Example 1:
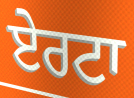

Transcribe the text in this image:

ਏਰਟਾ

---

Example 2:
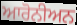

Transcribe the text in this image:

ਆਰੋਨੀਅਨ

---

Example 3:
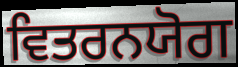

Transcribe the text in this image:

ਵਿਤਰਨਯੋਗ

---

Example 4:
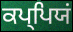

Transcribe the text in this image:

ਕਪ੍ਪਿਯਂ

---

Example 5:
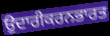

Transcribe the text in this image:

ਉਦਾਰੀਕਰਨਭਾਰਤ